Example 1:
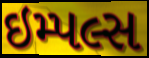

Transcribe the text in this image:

ઇમ્પલ્સ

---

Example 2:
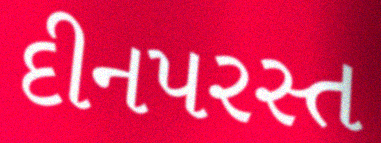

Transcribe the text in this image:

દીનપરસ્ત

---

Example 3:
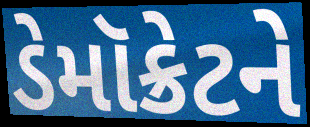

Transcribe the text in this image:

ડેમૉક્રેટને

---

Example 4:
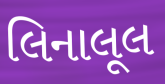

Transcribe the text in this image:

લિનાલૂલ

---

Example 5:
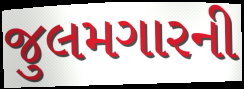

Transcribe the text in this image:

જુલમગારની